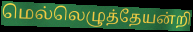
மெல்லெழுத்தேயன்றி